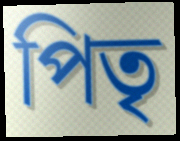
পিতৃ